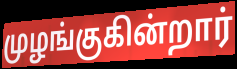
முழங்குகின்றார்